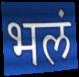
भलं